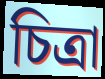
চিত্রা